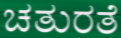
ಚತುರತೆ